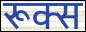
रूक्स